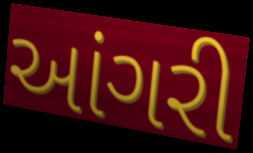
આંગરી